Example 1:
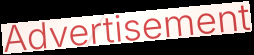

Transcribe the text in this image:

Advertisement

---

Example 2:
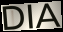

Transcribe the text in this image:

DIA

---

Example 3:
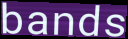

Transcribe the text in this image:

bands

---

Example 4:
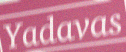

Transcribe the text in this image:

Yadavas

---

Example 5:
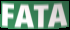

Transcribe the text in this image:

FATA